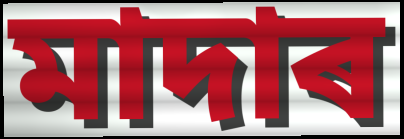
মাদাৰ